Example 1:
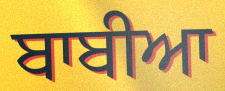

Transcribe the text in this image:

ਬਾਬੀਆ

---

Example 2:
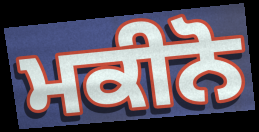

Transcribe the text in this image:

ਮਕੀਨੋ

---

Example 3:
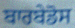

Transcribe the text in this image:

ਬਾਰਬੇਡੋਸ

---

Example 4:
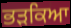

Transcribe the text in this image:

ਭੜਕਿਆ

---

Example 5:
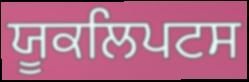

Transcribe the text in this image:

ਯੂਕਲਿਪਟਸ